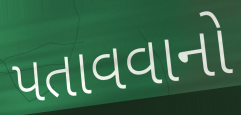
પતાવવાનો